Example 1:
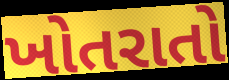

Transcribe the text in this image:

ખોતરાતો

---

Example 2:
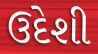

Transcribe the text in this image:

ઉદેશી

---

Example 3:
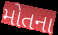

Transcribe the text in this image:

મોતના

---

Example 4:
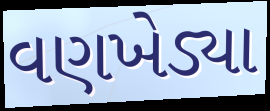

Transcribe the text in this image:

વણખેડ્યા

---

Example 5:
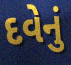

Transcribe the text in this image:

દવેનું